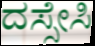
ದಸ್ಸೇಸಿ